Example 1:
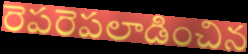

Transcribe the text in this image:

రెపరెపలాడించిన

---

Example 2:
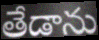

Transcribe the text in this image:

తేడాను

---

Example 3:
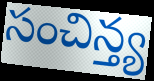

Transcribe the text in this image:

సంచిన్త్య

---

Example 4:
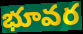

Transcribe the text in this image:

భూవర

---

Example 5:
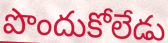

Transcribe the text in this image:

పొందుకోలేడు